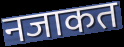
नजाकत